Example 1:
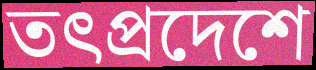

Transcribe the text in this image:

তৎপ্রদেশে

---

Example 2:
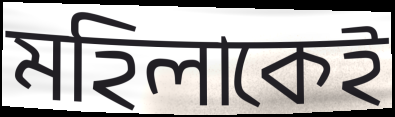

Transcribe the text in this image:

মহিলাকেই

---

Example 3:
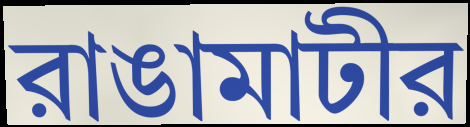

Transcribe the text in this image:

রাঙামাটীর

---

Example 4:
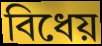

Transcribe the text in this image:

বিধেয়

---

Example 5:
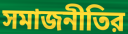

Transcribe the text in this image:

সমাজনীতির